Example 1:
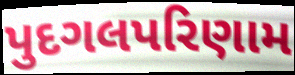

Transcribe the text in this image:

પુદગલપરિણામ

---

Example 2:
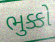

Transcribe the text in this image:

ભુક્કો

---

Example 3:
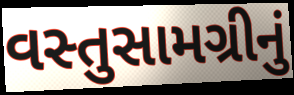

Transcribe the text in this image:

વસ્તુસામગ્રીનું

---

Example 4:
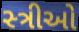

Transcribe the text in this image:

સ્‍ત્રીઓ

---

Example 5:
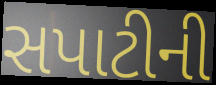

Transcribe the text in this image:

સપાટીની